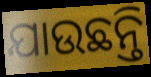
ଯାଉଛନ୍ତି